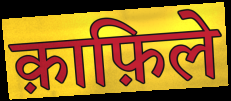
क़ाफ़िले